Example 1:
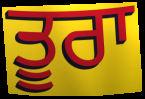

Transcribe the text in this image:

ਤੂਰਾ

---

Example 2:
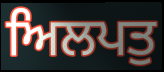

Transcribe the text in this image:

ਅਿਲਪਤੁ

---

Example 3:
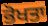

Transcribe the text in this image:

ਭੋਖਤਾ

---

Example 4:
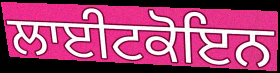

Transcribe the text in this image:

ਲਾਈਟਕੋਇਨ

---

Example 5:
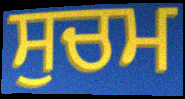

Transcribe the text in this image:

ਸੁਚਮ